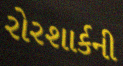
રોરશાર્કની